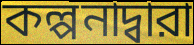
কল্পনাদ্বারা